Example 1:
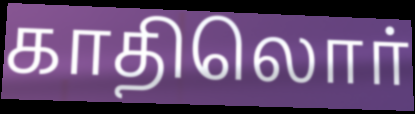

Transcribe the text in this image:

காதிலொர்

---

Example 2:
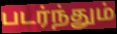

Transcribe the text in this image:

படர்ந்தும்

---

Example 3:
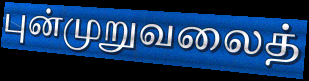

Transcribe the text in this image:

புன்முறுவலைத்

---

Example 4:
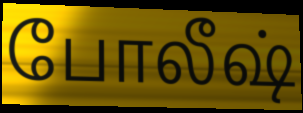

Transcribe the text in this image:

போலீஷ்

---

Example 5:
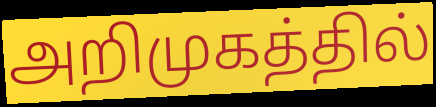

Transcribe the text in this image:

அறிமுகத்தில்